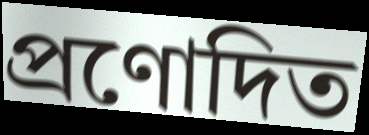
প্ৰণোদিত